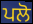
ਪਲੋ